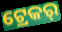
ଟ୍ରେକର୍